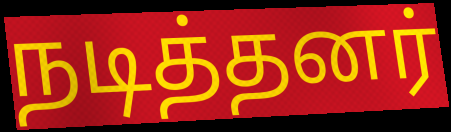
நடித்தனர்